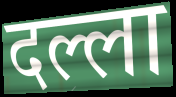
दल्ला